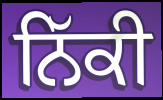
ਨਿੱਕੀ